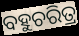
ବହୁଚରିତ୍ର